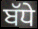
ਬੱਧੇ